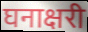
घनाक्षरी